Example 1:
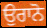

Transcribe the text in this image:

ਉਰਾਨੋ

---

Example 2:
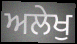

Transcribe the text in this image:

ਅਲੇਖੁ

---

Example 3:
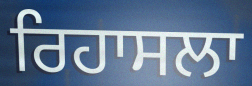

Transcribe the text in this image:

ਰਿਹਾਸਲਾ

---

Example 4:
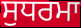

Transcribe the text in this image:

ਸੁਧਰਮਾ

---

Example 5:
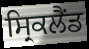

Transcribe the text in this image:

ਸ੍ਰਿਕਲੈਂਡ